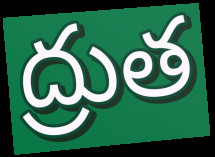
ద్రుత